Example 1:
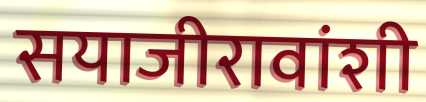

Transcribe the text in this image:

सयाजीरावांशी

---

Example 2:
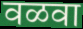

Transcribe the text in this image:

वळवा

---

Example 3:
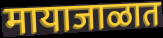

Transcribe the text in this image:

मायाजाळात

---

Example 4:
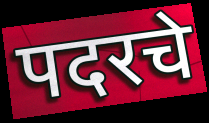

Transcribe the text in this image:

पदरचे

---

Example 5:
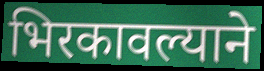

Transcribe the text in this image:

भिरकावल्याने